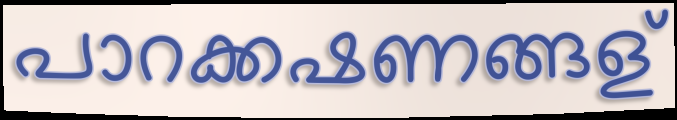
പാറക്കഷണങ്ങള്